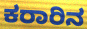
ಕರಾರಿನ